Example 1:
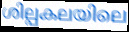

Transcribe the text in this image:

ശില്പകലയിലെ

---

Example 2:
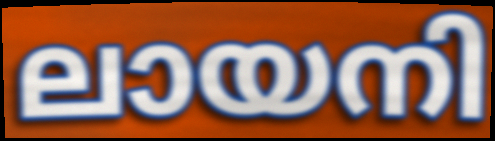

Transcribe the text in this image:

ലായനി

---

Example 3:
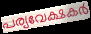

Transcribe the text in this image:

പര്യവേക്ഷകർ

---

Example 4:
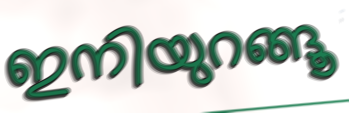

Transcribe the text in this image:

ഇനിയുറങ്ങൂ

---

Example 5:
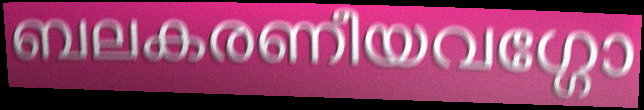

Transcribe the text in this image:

ബലകരണീയവഗ്ഗോ